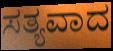
ಸತ್ಯವಾದ